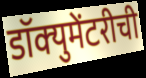
डॉक्युमेंटरीची